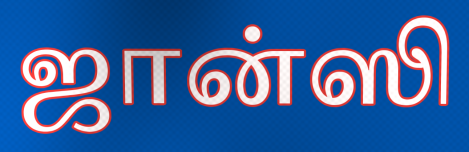
ஜான்ஸி